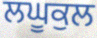
ਲਘੂਕੁਲ